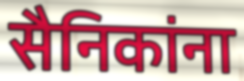
सैनिकांना